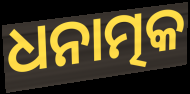
ଧନାତ୍ମକ